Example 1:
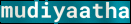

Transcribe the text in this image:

mudiyaatha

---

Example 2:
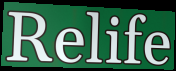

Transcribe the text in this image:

Relife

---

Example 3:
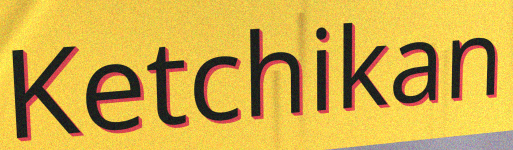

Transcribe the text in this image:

Ketchikan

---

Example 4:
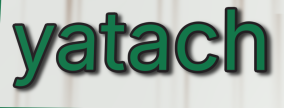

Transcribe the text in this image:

yatach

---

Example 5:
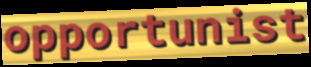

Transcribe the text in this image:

opportunist